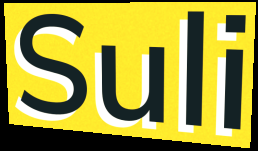
Suli